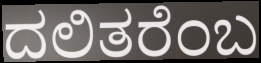
ದಲಿತರೆಂಬ